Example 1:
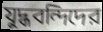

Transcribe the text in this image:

যুদ্ধবন্দিদের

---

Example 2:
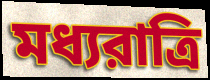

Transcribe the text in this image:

মধ্যরাত্রি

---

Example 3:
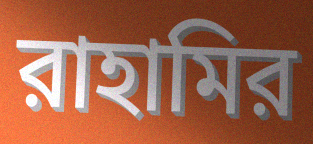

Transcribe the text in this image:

রাহামির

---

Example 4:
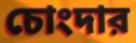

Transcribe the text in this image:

চোংদার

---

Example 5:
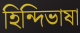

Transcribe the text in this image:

হিন্দিভাষা